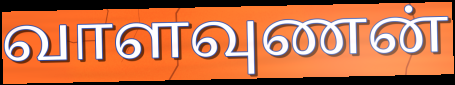
வாளவுணன்